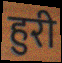
हुरी